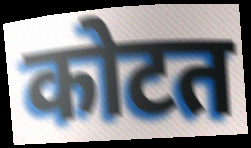
कोटत